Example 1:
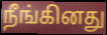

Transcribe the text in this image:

நீங்கினது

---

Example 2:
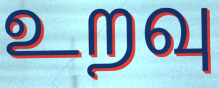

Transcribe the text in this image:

உறவு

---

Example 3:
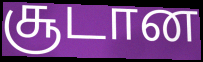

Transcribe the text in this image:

சூடான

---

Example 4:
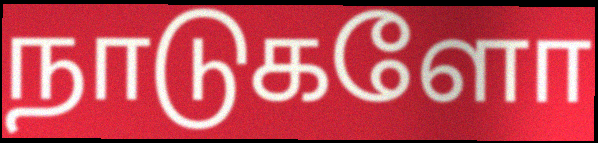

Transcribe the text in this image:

நாடுகளோ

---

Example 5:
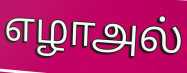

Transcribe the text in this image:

எழாஅல்